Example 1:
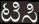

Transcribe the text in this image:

ಟಿಸಿ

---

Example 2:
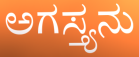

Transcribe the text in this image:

ಅಗಸ್ತ್ಯನು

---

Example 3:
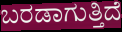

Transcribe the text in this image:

ಬರಡಾಗುತ್ತಿದೆ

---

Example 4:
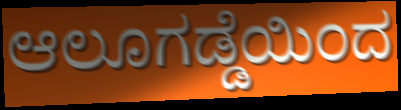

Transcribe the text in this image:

ಆಲೂಗಡ್ಡೆಯಿಂದ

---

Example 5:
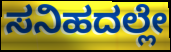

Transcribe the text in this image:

ಸನಿಹದಲ್ಲೇ